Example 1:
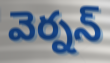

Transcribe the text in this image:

వెర్నన్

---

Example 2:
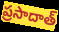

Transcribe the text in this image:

ప్రసాదాత్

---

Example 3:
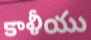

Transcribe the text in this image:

కాళీయు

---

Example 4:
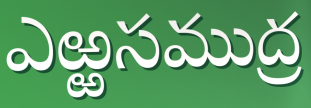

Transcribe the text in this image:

ఎఱ్ఱసముద్ర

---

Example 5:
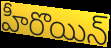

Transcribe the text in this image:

హీరొయిన్